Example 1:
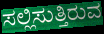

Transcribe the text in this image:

ಸಲ್ಲಿಸುತ್ತಿರುವ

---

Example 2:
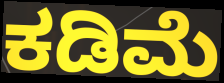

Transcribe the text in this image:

ಕಡಿಮೆ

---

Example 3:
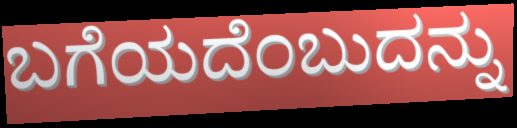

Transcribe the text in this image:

ಬಗೆಯದೆಂಬುದನ್ನು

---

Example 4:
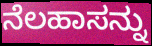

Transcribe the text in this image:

ನೆಲಹಾಸನ್ನು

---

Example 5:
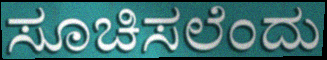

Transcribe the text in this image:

ಸೂಚಿಸಲೆಂದು